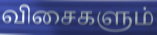
விசைகளும்